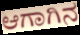
ಆಗಾಗಿನ